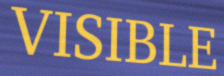
VISIBLE